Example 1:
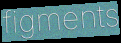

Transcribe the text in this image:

figments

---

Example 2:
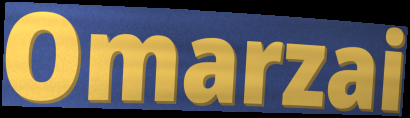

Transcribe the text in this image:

Omarzai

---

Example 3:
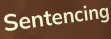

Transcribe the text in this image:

Sentencing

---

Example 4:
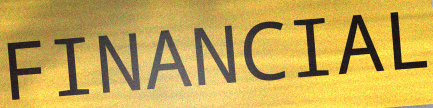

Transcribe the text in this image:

FINANCIAL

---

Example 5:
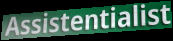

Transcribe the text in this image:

Assistentialist